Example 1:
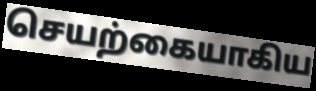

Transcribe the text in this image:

செயற்கையாகிய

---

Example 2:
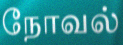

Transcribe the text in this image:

நோவல்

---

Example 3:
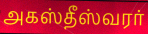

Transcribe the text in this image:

அகஸ்தீஸ்வரர்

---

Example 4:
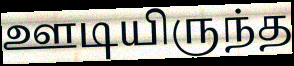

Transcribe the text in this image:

ஊடியிருந்த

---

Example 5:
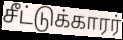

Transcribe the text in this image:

சீட்டுக்காரர்